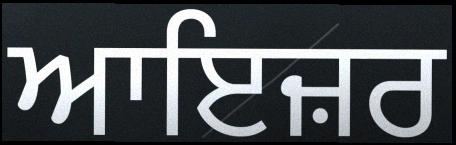
ਆਇਜ਼ਰ